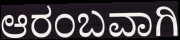
ಆರಂಬವಾಗಿ